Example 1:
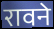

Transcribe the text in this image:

रावने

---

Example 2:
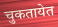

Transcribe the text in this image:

चुकतायेत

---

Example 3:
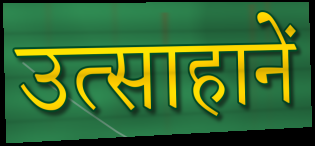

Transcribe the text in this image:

उत्साहानें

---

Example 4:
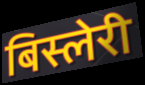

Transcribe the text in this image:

बिस्लेरी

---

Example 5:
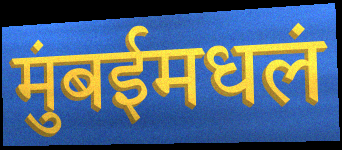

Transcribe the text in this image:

मुंबईमधलं